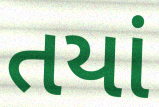
તયાં